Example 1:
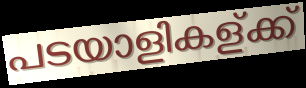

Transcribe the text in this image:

പടയാളികള്ക്ക്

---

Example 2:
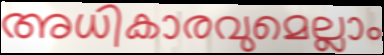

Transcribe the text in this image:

അധികാരവുമെല്ലാം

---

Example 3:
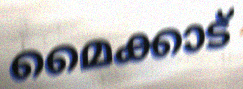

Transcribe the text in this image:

മൈക്കാട്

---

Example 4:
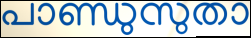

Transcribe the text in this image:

പാണ്ഡുസുതാ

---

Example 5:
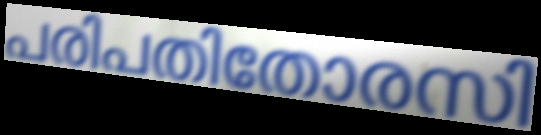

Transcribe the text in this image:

പരിപതിതോരസി